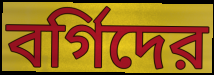
বর্গিদের